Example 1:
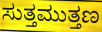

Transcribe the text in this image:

ಸುತ್ತಮುತ್ತಣ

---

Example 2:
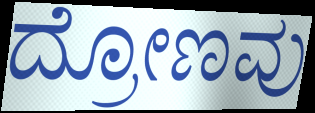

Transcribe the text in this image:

ದ್ರೋಣವು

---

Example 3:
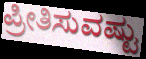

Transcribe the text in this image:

ಪ್ರೀತಿಸುವಷ್ಟು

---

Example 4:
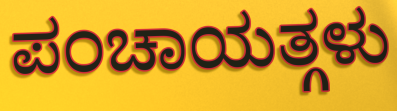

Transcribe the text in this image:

ಪಂಚಾಯತ್ಗಳು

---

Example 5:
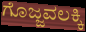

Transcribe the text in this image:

ಗೊಜ್ಜವಲಕ್ಕಿ